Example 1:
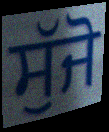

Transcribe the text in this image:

ਸੁੱਜੋ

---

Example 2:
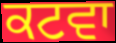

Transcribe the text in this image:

ਕਟਵਾ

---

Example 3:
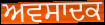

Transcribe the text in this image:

ਅਵਸਾਦਕ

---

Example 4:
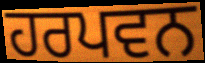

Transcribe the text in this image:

ਹਰਪਵਨ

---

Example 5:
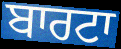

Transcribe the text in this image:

ਬਾਰਟਾ